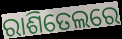
ରାଶିତେଲରେ